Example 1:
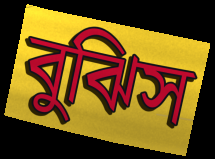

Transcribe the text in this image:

বুঝিস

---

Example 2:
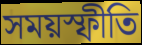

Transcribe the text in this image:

সময়স্ফীতি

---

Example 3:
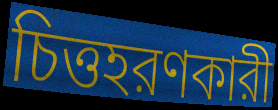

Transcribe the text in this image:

চিত্তহরণকারী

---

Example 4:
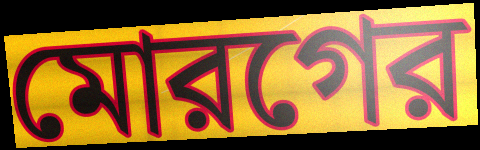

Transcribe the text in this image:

মোরগের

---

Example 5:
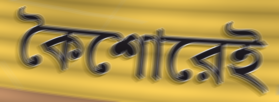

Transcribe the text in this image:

কৈশোরেই